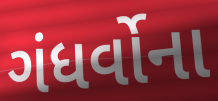
ગંધર્વોના